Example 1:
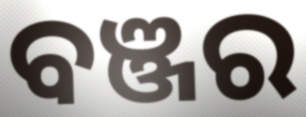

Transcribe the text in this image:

ବଞ୍ଜର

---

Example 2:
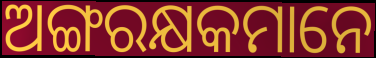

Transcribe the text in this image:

ଅଙ୍ଗରକ୍ଷକମାନେ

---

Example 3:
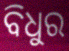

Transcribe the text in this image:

ବିଧୁର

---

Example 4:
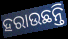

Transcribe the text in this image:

ହରାଉଛନ୍ତି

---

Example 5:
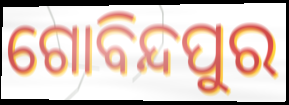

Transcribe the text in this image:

ଗୋବିନ୍ଦପୁର